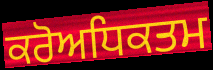
ਕਰੋਅਧਿਕਤਮ